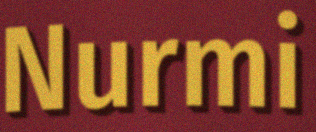
Nurmi